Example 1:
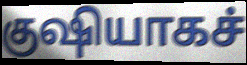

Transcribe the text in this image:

குஷியாகச்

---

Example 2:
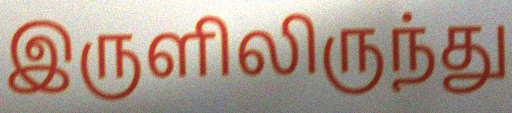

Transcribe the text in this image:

இருளிலிருந்து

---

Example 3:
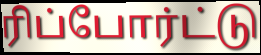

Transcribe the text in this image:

ரிப்போர்ட்டு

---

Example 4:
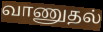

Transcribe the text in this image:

வாணுதல்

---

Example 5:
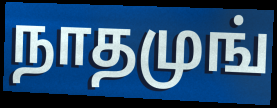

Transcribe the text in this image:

நாதமுங்